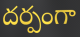
దర్పంగా